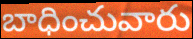
బాధించువారు